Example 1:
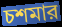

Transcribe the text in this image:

চশমার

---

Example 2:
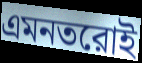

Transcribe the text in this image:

এমনতরোই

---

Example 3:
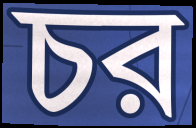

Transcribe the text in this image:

চর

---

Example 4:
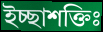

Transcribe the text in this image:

ইচ্ছাশক্তিঃ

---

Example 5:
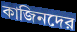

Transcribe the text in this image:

কাজিনদের